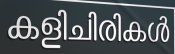
കളിചിരികൾ